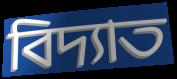
বিদ্যাত